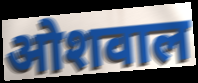
ओशवाल